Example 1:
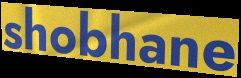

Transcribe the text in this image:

shobhane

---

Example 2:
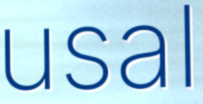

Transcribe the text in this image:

usal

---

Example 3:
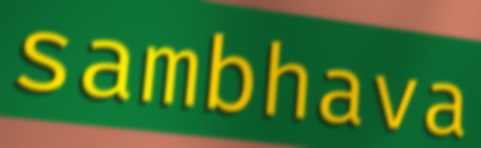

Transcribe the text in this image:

sambhava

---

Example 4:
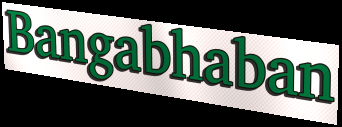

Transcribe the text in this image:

Bangabhaban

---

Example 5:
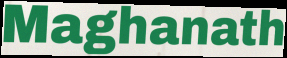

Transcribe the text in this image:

Maghanath